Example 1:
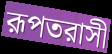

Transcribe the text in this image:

রূপতরাসী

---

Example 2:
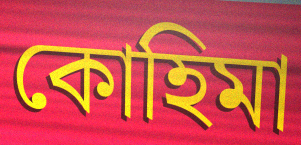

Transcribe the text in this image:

কোহিমা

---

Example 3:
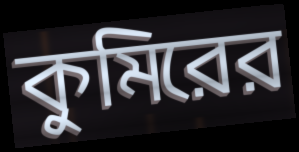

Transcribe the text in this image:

কুমিরের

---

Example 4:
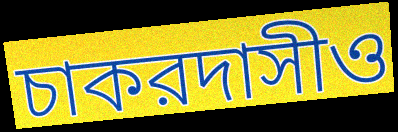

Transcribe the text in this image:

চাকরদাসীও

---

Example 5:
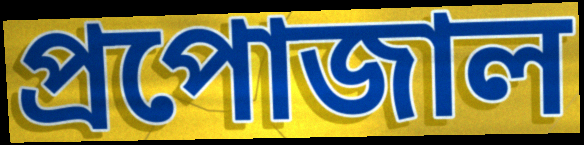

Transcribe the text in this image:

প্রপোজাল